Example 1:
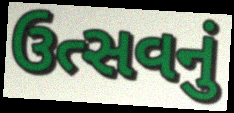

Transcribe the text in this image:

ઉત્સવનું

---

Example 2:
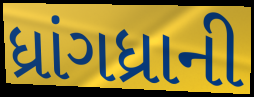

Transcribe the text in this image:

ધ્રાંગધ્રાની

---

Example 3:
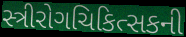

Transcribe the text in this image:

સ્ત્રીરોગચિકિત્સકની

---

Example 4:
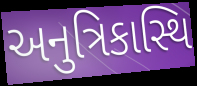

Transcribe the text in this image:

અનુત્રિકાસ્થિ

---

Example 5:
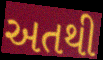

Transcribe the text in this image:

અતથી